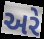
અરે